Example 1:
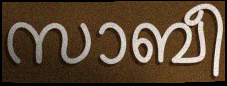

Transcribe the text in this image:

സാബീ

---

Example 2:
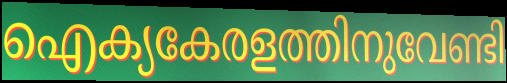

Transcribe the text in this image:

ഐക്യകേരളത്തിനുവേണ്ടി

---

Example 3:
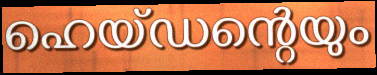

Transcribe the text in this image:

ഹെയ്ഡന്റെയും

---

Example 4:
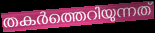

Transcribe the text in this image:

തകർത്തെറിയുന്നത്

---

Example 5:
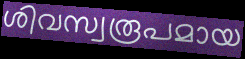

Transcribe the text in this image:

ശിവസ്വരൂപമായ